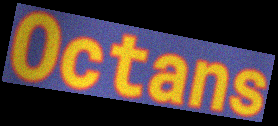
Octans